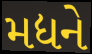
મદ્યને